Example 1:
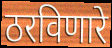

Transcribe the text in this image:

ठरविणारे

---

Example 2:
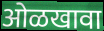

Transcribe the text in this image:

ओळखावा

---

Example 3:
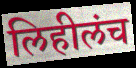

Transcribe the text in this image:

लिहीलंच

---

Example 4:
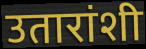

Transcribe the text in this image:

उतारांशी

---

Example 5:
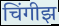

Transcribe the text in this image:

चिंगीझ